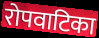
रोपवाटिका